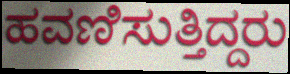
ಹವಣಿಸುತ್ತಿದ್ದರು